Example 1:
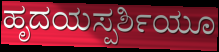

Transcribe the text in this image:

ಹೃದಯಸ್ಪರ್ಶಿಯೂ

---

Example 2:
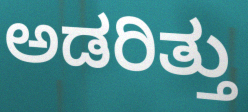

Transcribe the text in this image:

ಅಡರಿತ್ತು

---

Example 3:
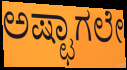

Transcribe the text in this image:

ಅಷ್ಟಾಗಲೇ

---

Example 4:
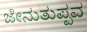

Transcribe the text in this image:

ಜೇನುತುಪ್ಪವ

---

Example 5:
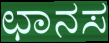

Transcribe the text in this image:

ಛಾನಸ